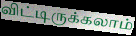
விட்டிருக்கலாம்